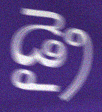
డ్రై